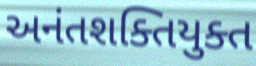
અનંતશક્તિયુક્ત